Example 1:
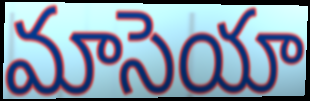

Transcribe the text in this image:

మాసెయా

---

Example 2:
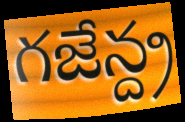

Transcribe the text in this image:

గజేన్ద్ర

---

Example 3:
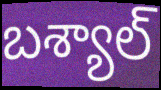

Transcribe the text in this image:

బశ్యాల్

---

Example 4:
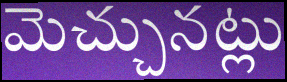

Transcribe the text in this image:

మెచ్చునట్లు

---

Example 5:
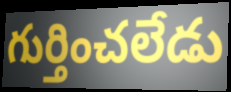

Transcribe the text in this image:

గుర్తించలేడు